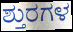
ಶ್ತುರಗಳ